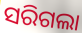
ସରିଗଲା